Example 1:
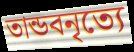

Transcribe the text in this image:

তান্ডবনৃত্যে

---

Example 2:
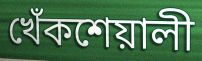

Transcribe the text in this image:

খেঁকশেয়ালী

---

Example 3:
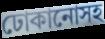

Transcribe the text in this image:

ঢোকানোসহ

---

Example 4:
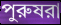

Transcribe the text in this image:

পুরুষরা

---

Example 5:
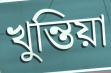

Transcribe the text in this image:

খুন্তিয়া